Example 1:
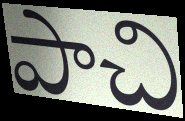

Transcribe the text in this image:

పాచి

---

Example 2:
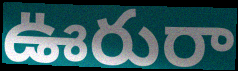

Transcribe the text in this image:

ఊరురా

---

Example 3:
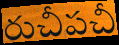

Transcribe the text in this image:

రుచీపచీ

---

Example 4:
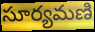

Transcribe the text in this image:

సూర్యమణి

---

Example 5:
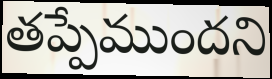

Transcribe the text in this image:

తప్పేముందని